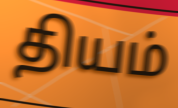
தியம்